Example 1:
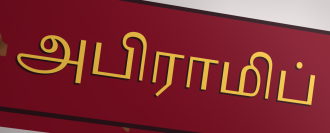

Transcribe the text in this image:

அபிராமிப்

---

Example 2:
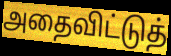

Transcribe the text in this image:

அதைவிட்டுத்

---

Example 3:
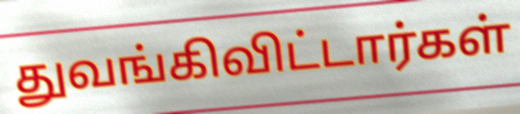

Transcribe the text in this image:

துவங்கிவிட்டார்கள்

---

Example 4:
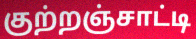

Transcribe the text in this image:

குற்றஞ்சாட்டி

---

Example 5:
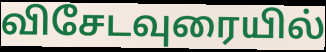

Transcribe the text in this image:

விசேடவுரையில்